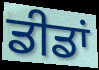
ਡੀਡਾਂ